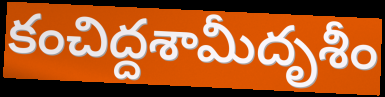
కంచిద్దశామీదృశీం